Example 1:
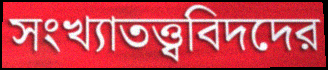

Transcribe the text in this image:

সংখ্যাতত্ত্ববিদদের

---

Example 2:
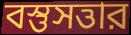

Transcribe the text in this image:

বস্তুসত্তার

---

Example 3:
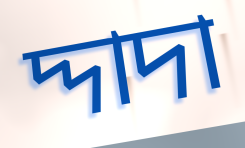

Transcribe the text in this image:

দ্দাদা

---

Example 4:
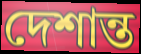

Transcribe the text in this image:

দেশান্ত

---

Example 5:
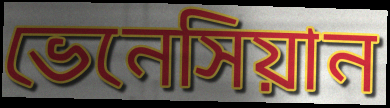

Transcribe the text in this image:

ভেনেসিয়ান